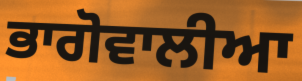
ਭਾਗੋਵਾਲੀਆ